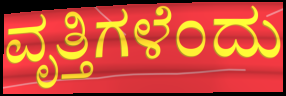
ವೃತ್ತಿಗಳೆಂದು